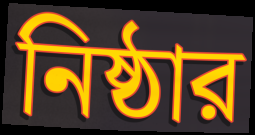
নিষ্ঠার